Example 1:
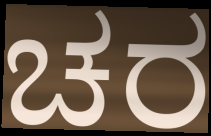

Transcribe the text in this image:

ಚರ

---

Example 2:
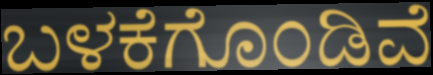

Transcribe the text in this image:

ಬಳಕೆಗೊಂಡಿವೆ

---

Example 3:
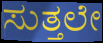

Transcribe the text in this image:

ಸುತ್ತಲೇ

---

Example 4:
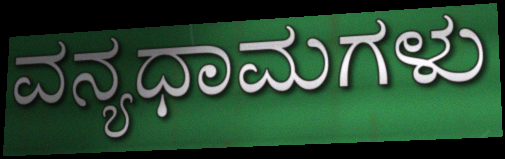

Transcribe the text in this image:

ವನ್ಯಧಾಮಗಳು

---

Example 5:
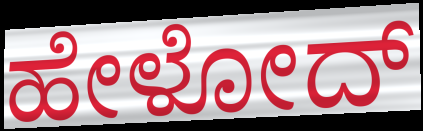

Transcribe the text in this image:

ಹೇಳೋದ್